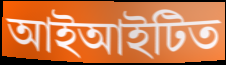
আইআইটিত